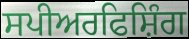
ਸਪੀਅਰਫਿਸ਼ਿੰਗ